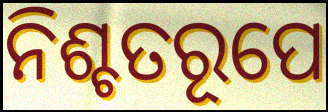
ନିଶ୍ଚତରୂପେ